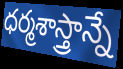
ధర్మశాస్త్రాన్నే